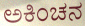
ಅಕಿಂಚನ